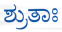
ಶ್ರುತಾಃ